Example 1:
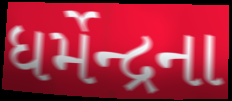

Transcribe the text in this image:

ધર્મેન્દ્રના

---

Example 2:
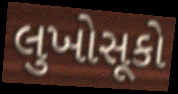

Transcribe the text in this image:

લુખોસૂકો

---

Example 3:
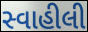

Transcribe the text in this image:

સ્વાહીલી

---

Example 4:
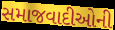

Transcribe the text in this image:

સમાજવાદીઓની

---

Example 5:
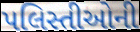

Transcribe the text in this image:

પલિસ્તીઓની